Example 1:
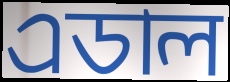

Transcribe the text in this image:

এডাল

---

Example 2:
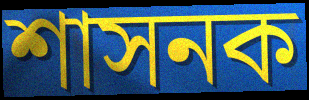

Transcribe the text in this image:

শাসনক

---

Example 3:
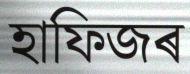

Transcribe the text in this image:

হাফিজৰ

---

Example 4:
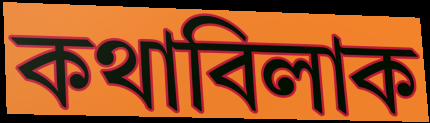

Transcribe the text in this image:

কথাবিলাক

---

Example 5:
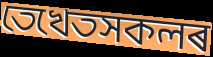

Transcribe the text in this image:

তেখেতসকলৰ